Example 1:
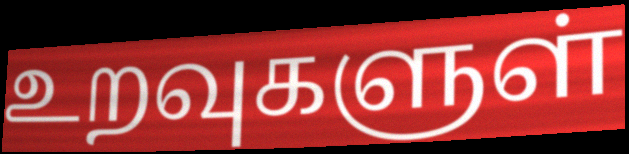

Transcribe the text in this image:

உறவுகளுள்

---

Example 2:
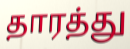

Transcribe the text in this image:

தாரத்து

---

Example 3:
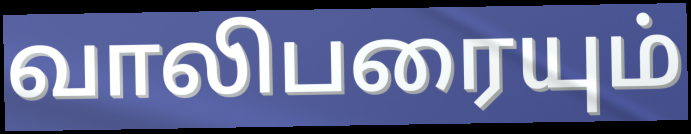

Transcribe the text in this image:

வாலிபரையும்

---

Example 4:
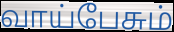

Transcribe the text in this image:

வாய்பேசும்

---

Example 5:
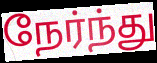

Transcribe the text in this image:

நேர்ந்து